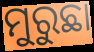
ମୁରୁଛା